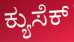
ಕ್ಯುಸೆಕ್